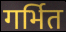
गर्भित